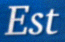
Est